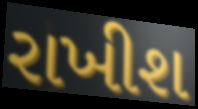
રાખીશ